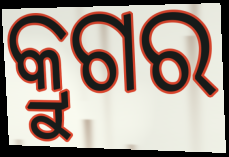
କ୍ରୁଗର